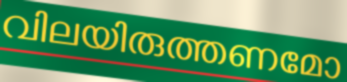
വിലയിരുത്തണമോ